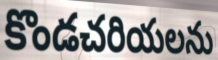
కొండచరియలను